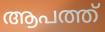
ആപത്ത്